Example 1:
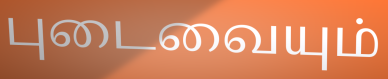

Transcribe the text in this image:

புடைவையும்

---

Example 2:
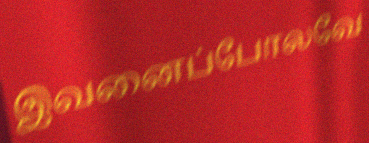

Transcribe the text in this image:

இவனைப்போலவே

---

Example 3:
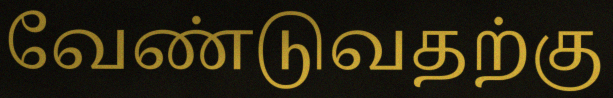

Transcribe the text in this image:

வேண்டுவதற்கு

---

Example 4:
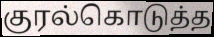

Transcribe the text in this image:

குரல்கொடுத்த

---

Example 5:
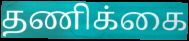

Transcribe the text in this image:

தணிக்கை